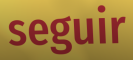
seguir